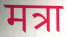
मत्रा